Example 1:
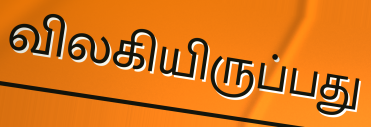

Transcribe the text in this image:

விலகியிருப்பது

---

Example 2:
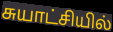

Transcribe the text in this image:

சுயாட்சியில்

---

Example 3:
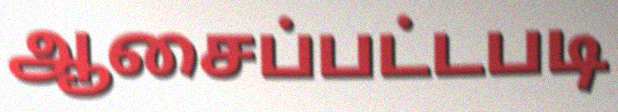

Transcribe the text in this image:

ஆசைப்பட்டபடி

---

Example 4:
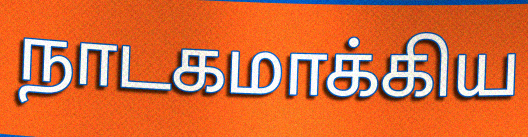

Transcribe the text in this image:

நாடகமாக்கிய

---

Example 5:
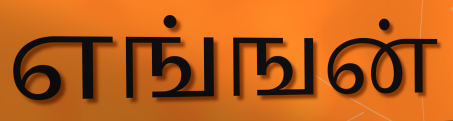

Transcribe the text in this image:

எங்ஙன்